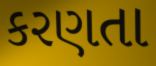
કરણતા